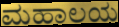
ಮಹಾಲಯ